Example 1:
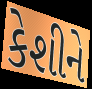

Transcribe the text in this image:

કેશીને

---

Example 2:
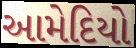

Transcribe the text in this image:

આમેદિયો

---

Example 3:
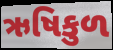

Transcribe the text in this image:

ઋષિકુળ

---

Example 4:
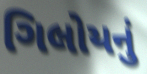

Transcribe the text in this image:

ગિલોયનું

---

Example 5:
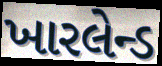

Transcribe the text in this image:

ખારલેન્ડ